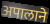
अपालाने